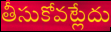
తీసుకోవట్లేదు